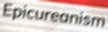
Epicureanism